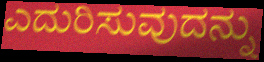
ಎದುರಿಸುವುದನ್ನು